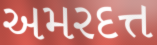
અમરદત્ત